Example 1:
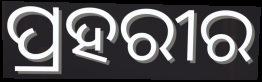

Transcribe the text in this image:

ପ୍ରହରୀର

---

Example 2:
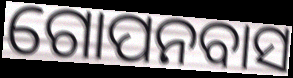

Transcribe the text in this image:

ଗୋପନବାସ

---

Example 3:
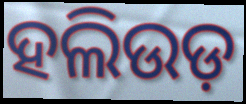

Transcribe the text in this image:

ହଲିଉଡ଼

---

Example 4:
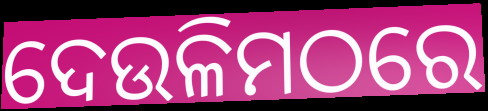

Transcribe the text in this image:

ଦେଉଳିମଠରେ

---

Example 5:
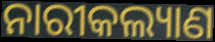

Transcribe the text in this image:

ନାରୀକଲ୍ୟାଣ